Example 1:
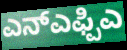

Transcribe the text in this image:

ಎನ್ಎಫ್ಪಿಎ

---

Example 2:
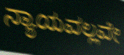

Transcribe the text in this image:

ನ್ಯಾಯವಲ್ಲವೇ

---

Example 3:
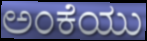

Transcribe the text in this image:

ಅಂಕೆಯು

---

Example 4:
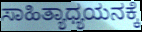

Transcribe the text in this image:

ಸಾಹಿತ್ಯಾಧ್ಯಯನಕ್ಕೆ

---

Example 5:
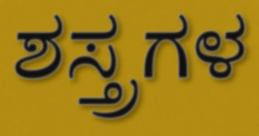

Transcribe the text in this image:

ಶಸ್ತ್ರಗಳ